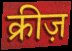
क्रीज़